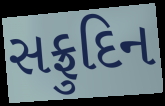
સફ્રુદિન